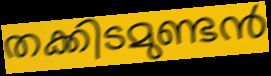
തക്കിടമുണ്ടൻ